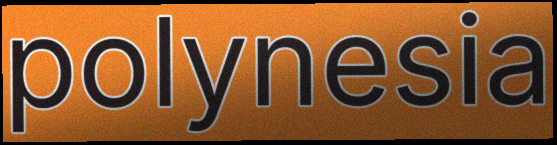
polynesia